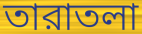
তারাতলা